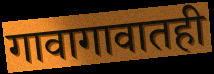
गावागावातही